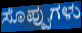
ಸೊಪ್ಪುಗಳು